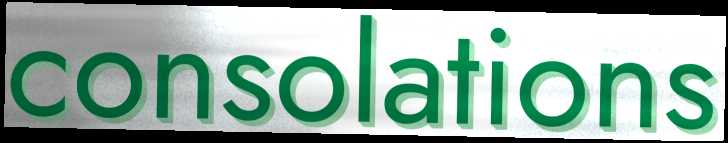
consolations